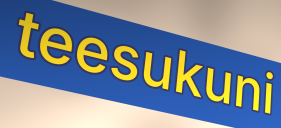
teesukuni